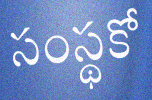
సంస్థకో